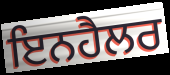
ਇਨਹੈਲਰ